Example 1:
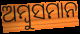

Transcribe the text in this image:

ଅମ୍ବୁସମାନ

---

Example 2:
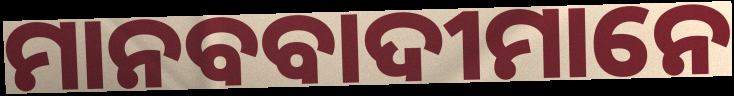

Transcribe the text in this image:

ମାନବବାଦୀମାନେ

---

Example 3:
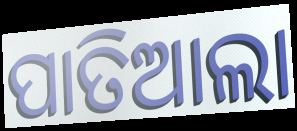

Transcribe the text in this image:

ପାତିଆଲା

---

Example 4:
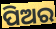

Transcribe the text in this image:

ପିଅର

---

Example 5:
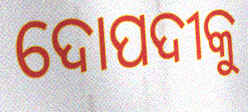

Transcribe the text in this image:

ଦୋପଦୀକୁ